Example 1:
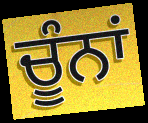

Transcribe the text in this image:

ਚੂੰਨਾਂ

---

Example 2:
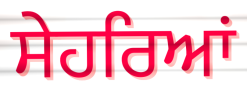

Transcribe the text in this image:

ਸੇਹਰਿਆਂ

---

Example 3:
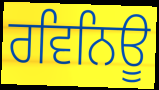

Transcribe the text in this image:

ਰਵਿਨਿਊ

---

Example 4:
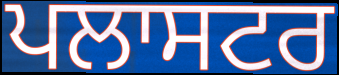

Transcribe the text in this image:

ਪਲਾਸਟਰ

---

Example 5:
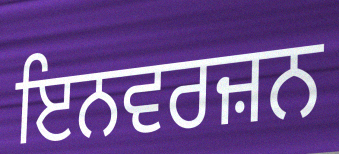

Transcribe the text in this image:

ਇਨਵਰਜ਼ਨ